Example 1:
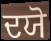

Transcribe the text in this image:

ਦਯੋ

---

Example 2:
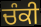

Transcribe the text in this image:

ਚੰਕੀ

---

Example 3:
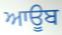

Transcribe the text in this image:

ਆਊਬ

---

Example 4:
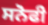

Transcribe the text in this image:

ਸਨੋਫੀ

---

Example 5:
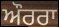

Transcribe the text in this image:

ਔਰਰਾ